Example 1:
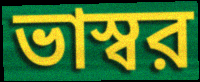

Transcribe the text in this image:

ভাস্বর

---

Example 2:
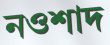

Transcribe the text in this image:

নওশাদ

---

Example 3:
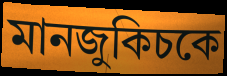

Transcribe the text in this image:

মানজুকিচকে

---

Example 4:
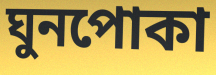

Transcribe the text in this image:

ঘুনপোকা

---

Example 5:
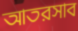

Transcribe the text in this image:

আতরসাব